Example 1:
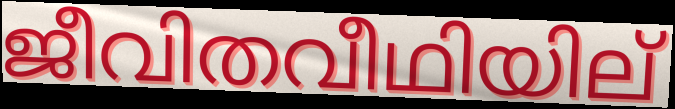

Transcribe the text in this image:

ജീവിതവീഥിയില്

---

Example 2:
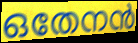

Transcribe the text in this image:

ഒതേനൻ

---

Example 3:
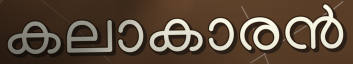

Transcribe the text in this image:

കലാകാരൻ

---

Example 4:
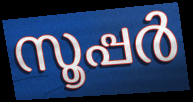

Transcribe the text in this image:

സൂപ്പർ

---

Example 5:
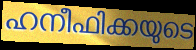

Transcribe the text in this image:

ഹനീഫിക്കയുടെ